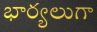
భార్యలుగా